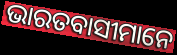
ଭାରତବାସୀମାନେ